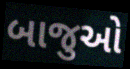
બાજુઓ